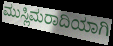
ಮುಸ್ಲಿಮರಾದಿಯಾಗಿ